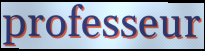
professeur